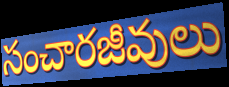
సంచారజీవులు